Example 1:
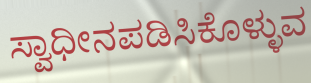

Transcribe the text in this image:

ಸ್ವಾಧೀನಪಡಿಸಿಕೊಳ್ಳುವ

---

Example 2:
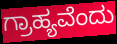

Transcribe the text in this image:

ಗ್ರಾಹ್ಯವೆಂದು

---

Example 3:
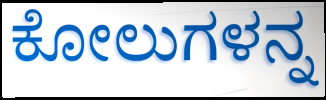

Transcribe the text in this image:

ಕೋಲುಗಳನ್ನ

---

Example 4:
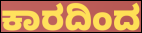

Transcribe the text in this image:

ಕಾರದಿಂದ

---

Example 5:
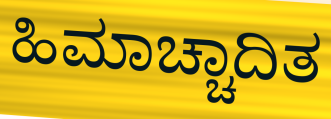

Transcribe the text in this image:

ಹಿಮಾಚ್ಚಾದಿತ